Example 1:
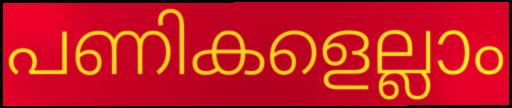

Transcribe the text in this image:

പണികളെല്ലാം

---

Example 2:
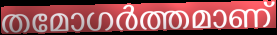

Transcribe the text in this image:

തമോഗർത്തമാണ്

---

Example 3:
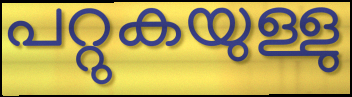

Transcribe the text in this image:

പറ്റുകയുള്ളു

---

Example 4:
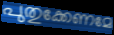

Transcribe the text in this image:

പുതുക്കേണമേ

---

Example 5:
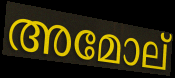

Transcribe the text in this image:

അമോല്